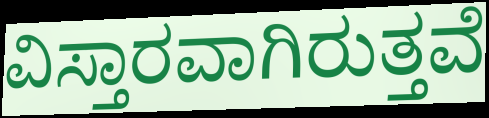
ವಿಸ್ತಾರವಾಗಿರುತ್ತವೆ